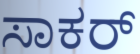
ಸಾಕರ್